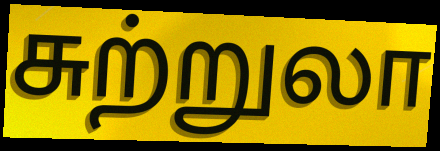
சுற்றுலா